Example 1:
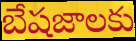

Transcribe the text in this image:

బేషజాలకు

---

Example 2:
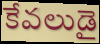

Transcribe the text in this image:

కేవలుడై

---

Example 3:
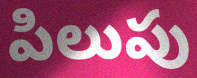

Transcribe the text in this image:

పిలుపు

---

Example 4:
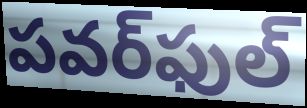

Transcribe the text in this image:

పవర్‌ఫుల్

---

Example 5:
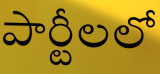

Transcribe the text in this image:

పార్టీలలో